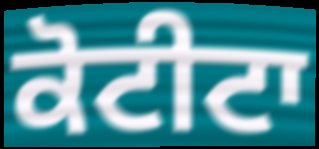
ਕੋਟੀਟਾ